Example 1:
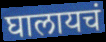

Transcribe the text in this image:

घालायचं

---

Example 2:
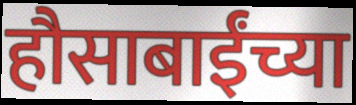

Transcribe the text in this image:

हौसाबाईंच्या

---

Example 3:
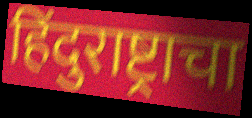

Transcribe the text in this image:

हिंदुराष्ट्राचा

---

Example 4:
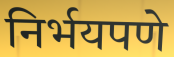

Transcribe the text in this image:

निर्भयपणे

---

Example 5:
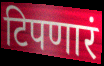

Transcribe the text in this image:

टिपणारं